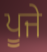
ਪੂਜੇ